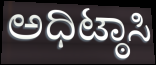
ಅಧಿಟ್ಠಾಸಿ